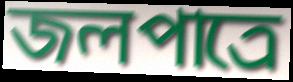
জলপাত্রে